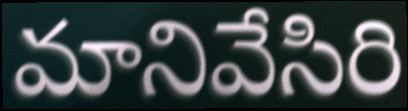
మానివేసిరి